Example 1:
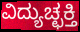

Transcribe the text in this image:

ವಿದ್ಯುಚ್ಛಕ್ತಿ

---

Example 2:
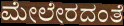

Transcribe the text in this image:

ಮೇಲೇರದಂತೆ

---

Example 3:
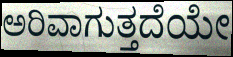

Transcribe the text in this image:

ಅರಿವಾಗುತ್ತದೆಯೇ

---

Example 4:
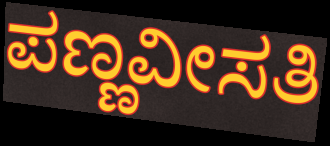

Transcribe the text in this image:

ಪಣ್ಣವೀಸತಿ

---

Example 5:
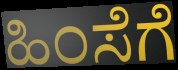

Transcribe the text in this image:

ಹಿಂಸೆಗೆ